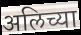
अलिच्या